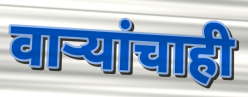
वाऱ्यांचाही